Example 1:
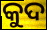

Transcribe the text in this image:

କୁଦ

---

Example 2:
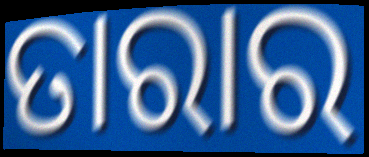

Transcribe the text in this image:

ତାରାର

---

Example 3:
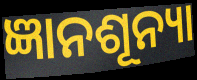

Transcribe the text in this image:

ଜ୍ଞାନଶୂନ୍ୟା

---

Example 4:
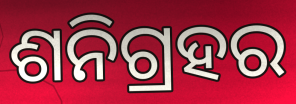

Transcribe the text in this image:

ଶନିଗ୍ରହର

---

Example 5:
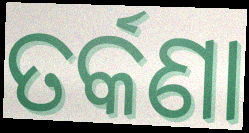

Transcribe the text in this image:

ତର୍କଣା